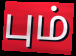
பும்